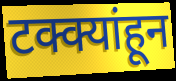
टक्क्यांहून